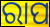
ରାପ